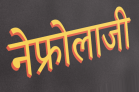
नेफ्रोलाजी